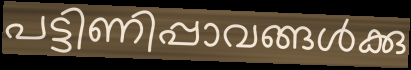
പട്ടിണിപ്പാവങ്ങൾക്കു